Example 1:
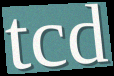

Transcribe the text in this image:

tcd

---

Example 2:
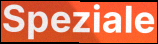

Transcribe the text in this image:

Speziale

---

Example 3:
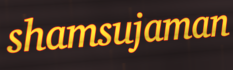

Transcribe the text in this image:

shamsujaman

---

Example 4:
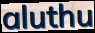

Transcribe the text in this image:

aluthu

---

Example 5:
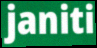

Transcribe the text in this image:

janiti